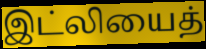
இட்லியைத்